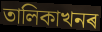
তালিকাখনৰ